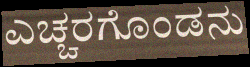
ಎಚ್ಚರಗೊಂಡನು